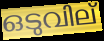
ഒടുവില്